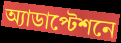
অ্যাডাপ্টেশনে